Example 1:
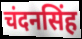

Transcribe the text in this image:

चंदनसिंह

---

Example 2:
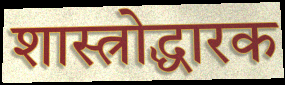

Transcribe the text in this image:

शास्त्रोद्धारक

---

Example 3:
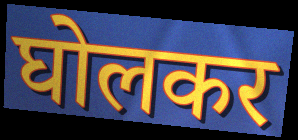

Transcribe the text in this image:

घोलकर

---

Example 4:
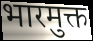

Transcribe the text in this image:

भारमुक्त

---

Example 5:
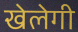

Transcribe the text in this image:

खेलेगी